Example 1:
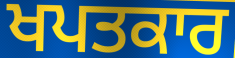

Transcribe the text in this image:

ਖਪਤਕਾਰ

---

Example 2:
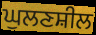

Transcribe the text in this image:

ਘੁਲਣਸ਼ੀਲ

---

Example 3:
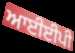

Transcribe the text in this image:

ਆਈਈਪੀ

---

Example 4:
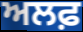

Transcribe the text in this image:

ਅਲਫ਼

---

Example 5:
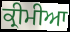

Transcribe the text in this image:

ਕ੍ਰੀਮੀਆ